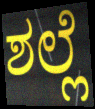
ಶಲ್ಲೆ